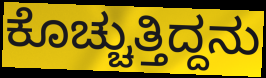
ಕೊಚ್ಚುತ್ತಿದ್ದನು